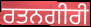
ਰਤਨਗੀਰੀ